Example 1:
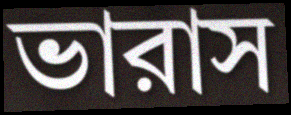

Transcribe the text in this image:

ভারাস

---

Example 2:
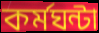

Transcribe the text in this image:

কর্মঘন্টা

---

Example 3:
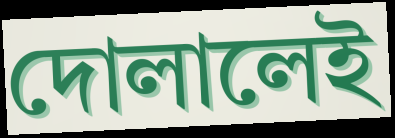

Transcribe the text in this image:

দোলালেই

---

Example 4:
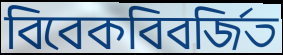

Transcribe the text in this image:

বিবেকবিবর্জিত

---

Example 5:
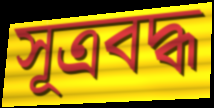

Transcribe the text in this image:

সূত্রবদ্ধ